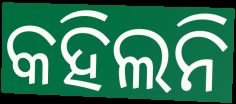
କହିଲନି